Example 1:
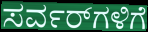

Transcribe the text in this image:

ಸರ್ವರ್‌ಗಳಿಗೆ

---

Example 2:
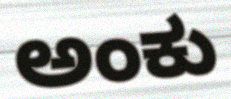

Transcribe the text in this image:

ಅಂಕು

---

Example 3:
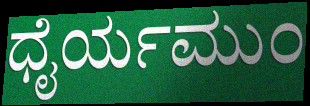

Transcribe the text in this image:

ಧೈರ್ಯಮುಂ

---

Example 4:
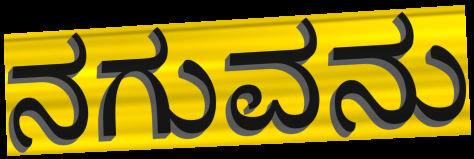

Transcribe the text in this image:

ನಗುವನು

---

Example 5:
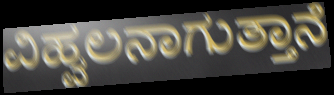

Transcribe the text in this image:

ವಿಹ್ವಲನಾಗುತ್ತಾನೆ